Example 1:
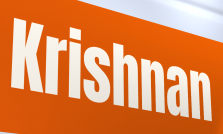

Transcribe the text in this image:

Krishnan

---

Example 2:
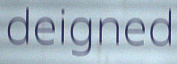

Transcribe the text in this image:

deigned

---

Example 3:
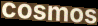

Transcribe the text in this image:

cosmos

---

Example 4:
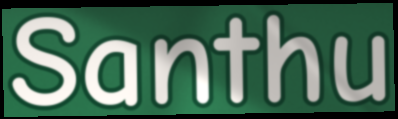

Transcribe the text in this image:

Santhu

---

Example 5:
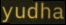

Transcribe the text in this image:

yudha